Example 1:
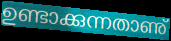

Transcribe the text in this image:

ഉണ്ടാക്കുന്നതാണു്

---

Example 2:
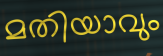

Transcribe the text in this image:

മതിയാവും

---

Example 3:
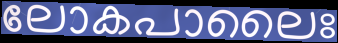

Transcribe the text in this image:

ലോകപാലൈഃ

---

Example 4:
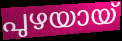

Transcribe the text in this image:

പുഴയായ്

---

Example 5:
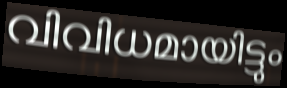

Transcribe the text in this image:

വിവിധമായിട്ടും